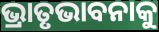
ଭ୍ରାତୃଭାବନାକୁ